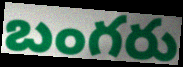
బంగరు